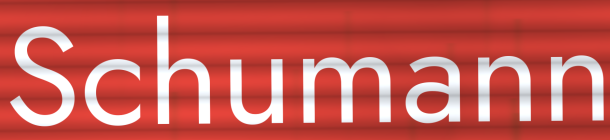
Schumann